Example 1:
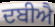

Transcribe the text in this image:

ਦਬੀਐ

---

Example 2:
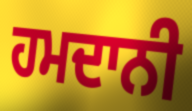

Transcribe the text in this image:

ਹਮਦਾਨੀ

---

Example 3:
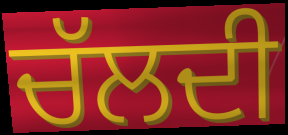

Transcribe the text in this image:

ਚੱਲਦੀ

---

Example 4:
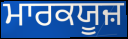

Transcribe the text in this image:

ਮਾਰਕਯੂਜ਼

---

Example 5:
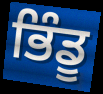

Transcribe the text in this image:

ਭਿੰਡੂ